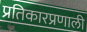
प्रतिकारप्रणाली